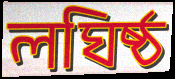
লঘিষ্ঠ